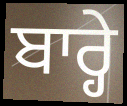
ਬਾਰ੍ਹੇ